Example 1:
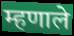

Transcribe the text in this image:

म्हणाले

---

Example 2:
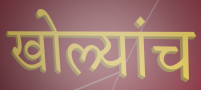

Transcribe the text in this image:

खोल्यांच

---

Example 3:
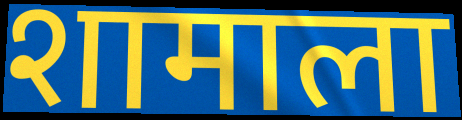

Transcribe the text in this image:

शामाला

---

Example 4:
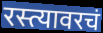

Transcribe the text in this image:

रस्त्यावरचं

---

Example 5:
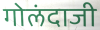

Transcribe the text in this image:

गोलंदाजी